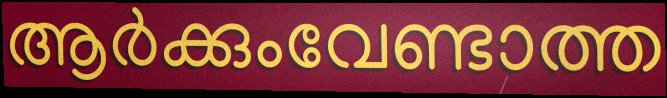
ആർക്കുംവേണ്ടാത്ത